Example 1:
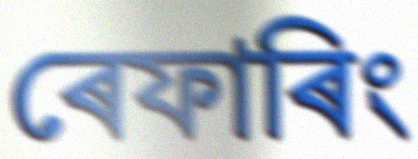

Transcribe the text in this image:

ৰেফাৰিং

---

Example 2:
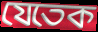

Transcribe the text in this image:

যেতেক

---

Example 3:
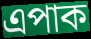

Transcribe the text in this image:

এপাক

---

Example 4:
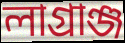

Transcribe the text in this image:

লাগ্ৰাঞ্জ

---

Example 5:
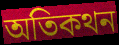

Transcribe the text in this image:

অতিকথন